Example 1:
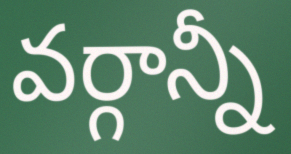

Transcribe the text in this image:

వర్గాన్నీ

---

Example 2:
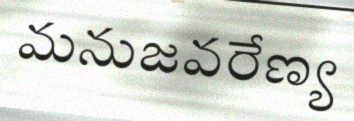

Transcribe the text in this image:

మనుజవరేణ్య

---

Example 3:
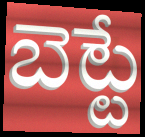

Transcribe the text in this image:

బెట్టే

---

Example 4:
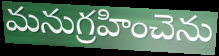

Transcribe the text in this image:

మనుగ్రహించెను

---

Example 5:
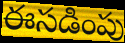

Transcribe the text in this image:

ఈసడింపు